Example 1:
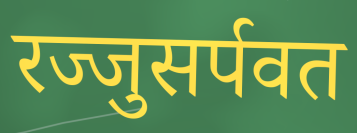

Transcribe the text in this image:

रज्जुसर्पवत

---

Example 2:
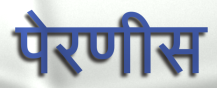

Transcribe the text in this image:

पेरणीस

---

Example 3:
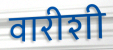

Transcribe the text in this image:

वारीशी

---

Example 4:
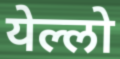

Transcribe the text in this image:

येल्लो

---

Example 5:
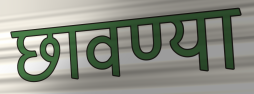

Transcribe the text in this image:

छावण्या